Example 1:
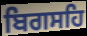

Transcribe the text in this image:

ਬਿਗਸਹਿ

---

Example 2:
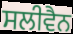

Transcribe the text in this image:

ਸਲੀਵੈਨ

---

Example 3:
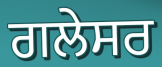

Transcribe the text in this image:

ਗਲੇਸਰ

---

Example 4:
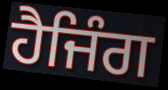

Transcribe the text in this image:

ਹੈਜਿੰਗ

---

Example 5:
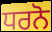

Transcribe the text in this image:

ਧਰਨੋ